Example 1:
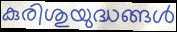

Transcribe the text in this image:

കുരിശുയുദ്ധങ്ങൾ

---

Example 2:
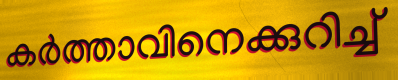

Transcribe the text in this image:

കർത്താവിനെക്കുറിച്ച്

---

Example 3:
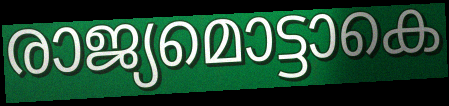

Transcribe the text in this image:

രാജ്യമൊട്ടാകെ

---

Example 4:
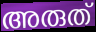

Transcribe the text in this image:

അരുത്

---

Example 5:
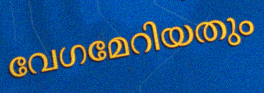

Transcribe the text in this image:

വേഗമേറിയതും